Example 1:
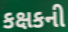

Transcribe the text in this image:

કક્ષકની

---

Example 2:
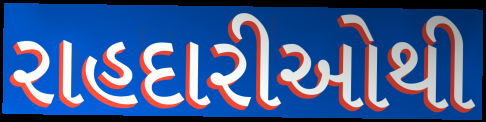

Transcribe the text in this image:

રાહદારીઓથી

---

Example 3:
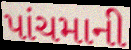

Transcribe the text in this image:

પાંચમાની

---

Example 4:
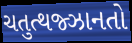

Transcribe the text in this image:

ચતુત્થજ્ઝાનતો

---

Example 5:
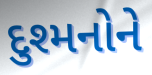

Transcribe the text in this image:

દુશ્મનોને